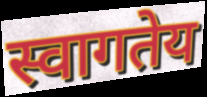
स्वागतेय